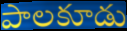
పాలకూడు